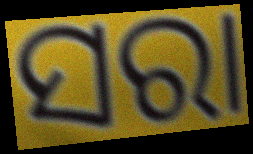
ସରା